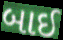
બાઈ